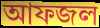
আফজল